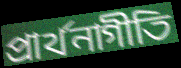
প্রার্থনাগীতি